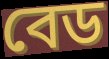
বেড